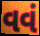
વવં